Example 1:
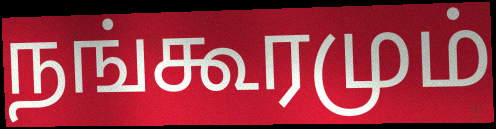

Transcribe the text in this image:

நங்கூரமும்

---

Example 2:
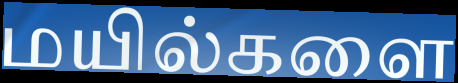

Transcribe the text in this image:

மயில்களை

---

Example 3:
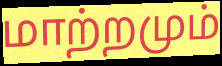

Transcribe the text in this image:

மாற்றமும்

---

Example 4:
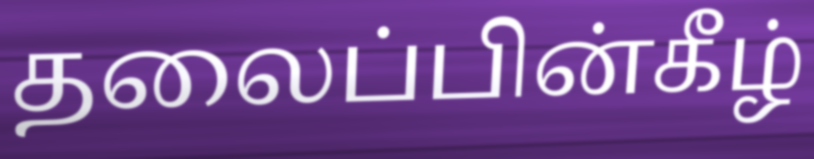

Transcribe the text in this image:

தலைப்பின்கீழ்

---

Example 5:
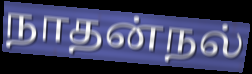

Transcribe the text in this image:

நாதன்நல்